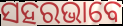
ସହରଭାବେ